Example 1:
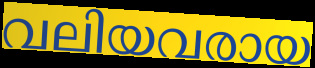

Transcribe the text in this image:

വലിയവരായ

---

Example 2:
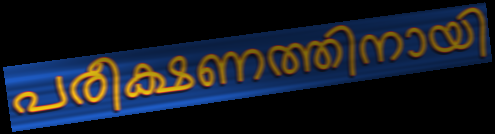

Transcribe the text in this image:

പരീക്ഷണത്തിനായി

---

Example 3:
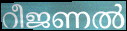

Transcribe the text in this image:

റീജണൽ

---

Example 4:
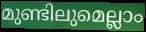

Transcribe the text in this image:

മുണ്ടിലുമെല്ലാം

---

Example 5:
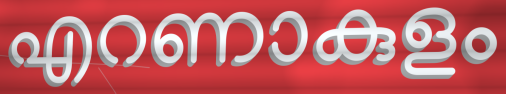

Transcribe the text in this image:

എറണാകുളം